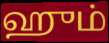
ஹும்